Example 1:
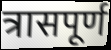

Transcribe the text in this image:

त्रासपूर्ण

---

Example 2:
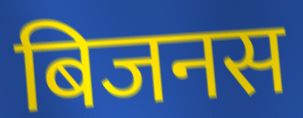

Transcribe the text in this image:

बिजनस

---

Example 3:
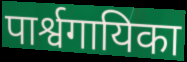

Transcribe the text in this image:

पार्श्वगायिका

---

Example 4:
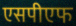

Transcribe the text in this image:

एसपीएफ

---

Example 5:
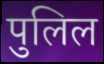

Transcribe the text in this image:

पुलिल